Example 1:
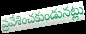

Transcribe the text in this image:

ప్రవేశించకుండునట్లు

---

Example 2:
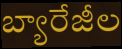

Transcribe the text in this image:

బ్యారేజీల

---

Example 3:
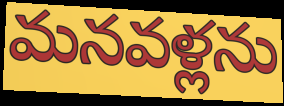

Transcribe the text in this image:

మనవళ్లను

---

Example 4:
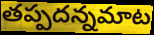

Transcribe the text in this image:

తప్పదన్నమాట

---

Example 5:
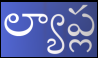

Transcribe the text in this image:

ల్యాప్ల